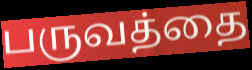
பருவத்தை